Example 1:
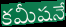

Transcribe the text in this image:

కమీషనే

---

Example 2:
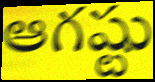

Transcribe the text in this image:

ఆగష్టు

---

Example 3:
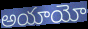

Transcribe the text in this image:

అయాయో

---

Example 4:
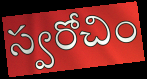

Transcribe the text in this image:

స్వరోచిం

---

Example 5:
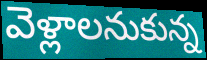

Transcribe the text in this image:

వెళ్లాలనుకున్న